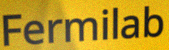
Fermilab